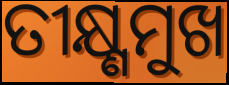
ତୀକ୍ଷ୍ଣମୁଖ